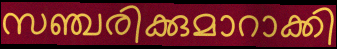
സഞ്ചരിക്കുമാറാക്കി